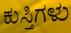
ಕುಸ್ತಿಗಳು